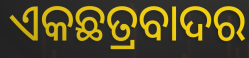
ଏକଛତ୍ରବାଦର